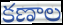
కణాల